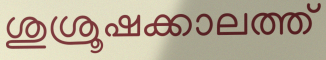
ശുശ്രൂഷക്കാലത്ത്